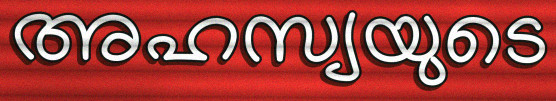
അഹസ്യയുടെ